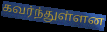
கவர்ந்துள்ளன